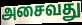
அசைவது